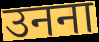
उनना